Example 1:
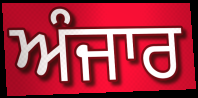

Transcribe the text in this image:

ਅੰਜਾਰ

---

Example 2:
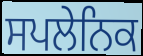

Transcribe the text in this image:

ਸਪਲੇਨਿਕ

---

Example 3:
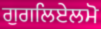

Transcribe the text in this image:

ਗੁਗਲਿਏਲਮੋ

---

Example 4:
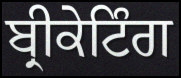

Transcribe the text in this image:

ਬ੍ਰੀਕੇਟਿੰਗ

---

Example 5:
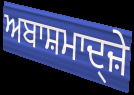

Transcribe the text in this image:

ਅਬਾਸ਼ਮਾਦ੍ਜ਼ੇ